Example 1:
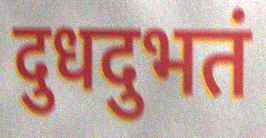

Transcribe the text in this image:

दुधदुभतं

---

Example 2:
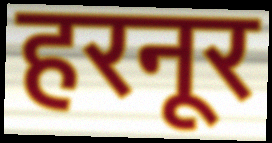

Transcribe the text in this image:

हरनूर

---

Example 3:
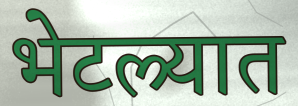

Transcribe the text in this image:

भेटल्यात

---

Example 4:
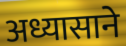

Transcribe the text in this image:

अध्यासाने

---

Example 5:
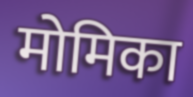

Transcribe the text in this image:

मोमिका